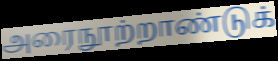
அரைநூற்றாண்டுக்